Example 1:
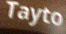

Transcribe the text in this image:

Tayto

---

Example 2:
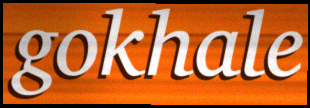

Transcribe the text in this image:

gokhale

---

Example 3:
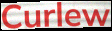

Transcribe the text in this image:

Curlew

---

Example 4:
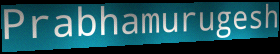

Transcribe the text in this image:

Prabhamurugesh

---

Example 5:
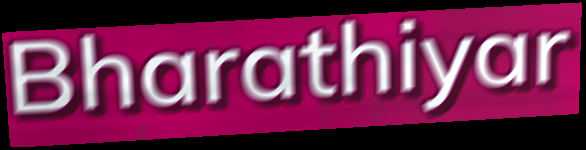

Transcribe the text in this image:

Bharathiyar